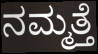
ನಮ್ಮತ್ತೆ